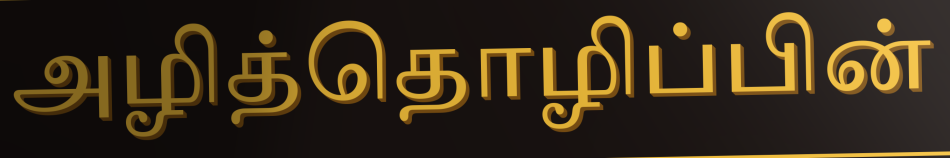
அழித்தொழிப்பின்